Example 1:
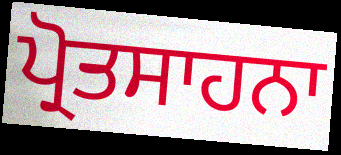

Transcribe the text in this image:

ਪ੍ਰੋਤਸਾਹਨਾ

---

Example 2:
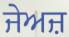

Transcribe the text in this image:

ਜੇਅਜ਼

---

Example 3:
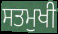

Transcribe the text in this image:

ਸਤਮੁਖੀ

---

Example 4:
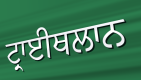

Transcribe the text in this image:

ਟ੍ਰਾਈਥਲਾਨ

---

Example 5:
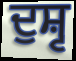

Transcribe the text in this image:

ਦੁਸ਼੍ਟ